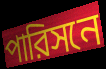
পারিসনে